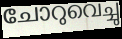
ചോറുവെച്ചു